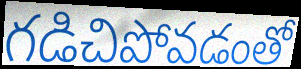
గడిచిపోవడంతో